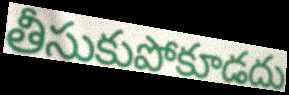
తీసుకుపోకూడదు